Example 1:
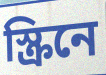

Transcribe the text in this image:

স্ক্রিনে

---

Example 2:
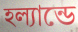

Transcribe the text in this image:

হল্যান্ডে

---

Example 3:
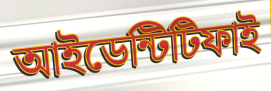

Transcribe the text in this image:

আইডেন্টিটিফাই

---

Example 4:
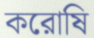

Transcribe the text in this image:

করোষি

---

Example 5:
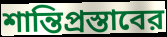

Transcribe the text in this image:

শান্তিপ্রস্তাবের